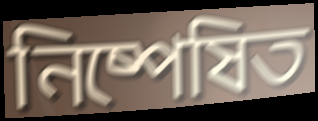
নিষ্পেষিত